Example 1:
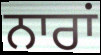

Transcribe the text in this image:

ਨਾਰਾਂ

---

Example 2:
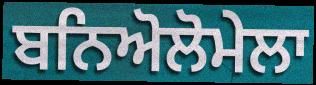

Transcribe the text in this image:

ਬਨਿਅੋਲੋਮੇਲਾ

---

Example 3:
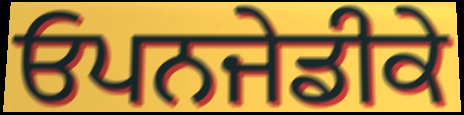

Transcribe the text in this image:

ਓਪਨਜੇਡੀਕੇ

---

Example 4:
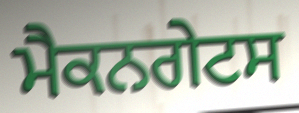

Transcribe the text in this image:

ਮੈਕਨਗੇਟਸ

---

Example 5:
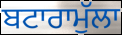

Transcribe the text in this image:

ਬਟਾਰਾਮੁੱਲਾ